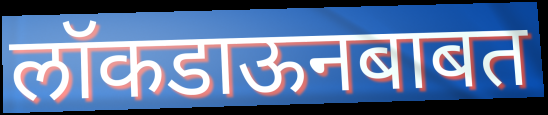
लॉकडाऊनबाबत